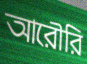
আরৌরি